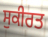
ਸੁਕੀਰਤ